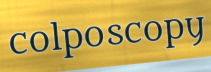
colposcopy